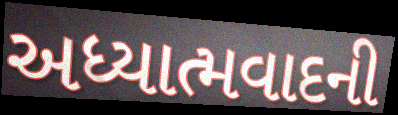
અધ્યાત્મવાદની